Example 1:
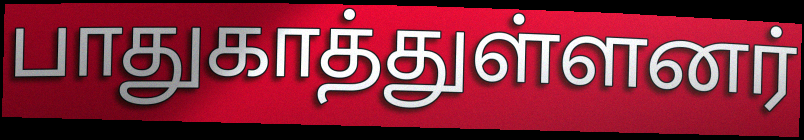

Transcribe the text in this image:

பாதுகாத்துள்ளனர்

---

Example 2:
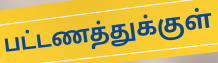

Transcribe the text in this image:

பட்டணத்துக்குள்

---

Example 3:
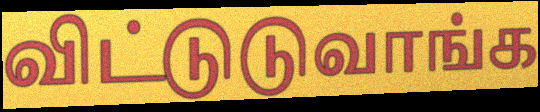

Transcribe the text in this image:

விட்டுடுவாங்க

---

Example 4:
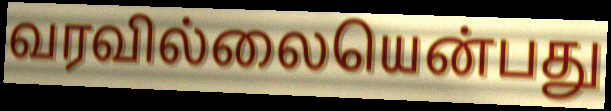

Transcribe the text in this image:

வரவில்லையென்பது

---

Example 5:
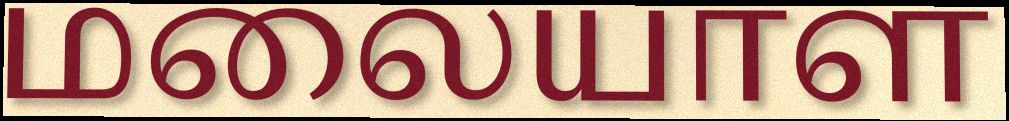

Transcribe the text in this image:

மலையாள